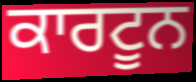
ਕਾਰਟੂਨ